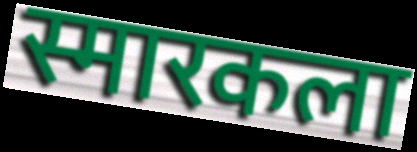
स्मारकला